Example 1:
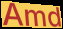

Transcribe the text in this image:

Amd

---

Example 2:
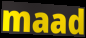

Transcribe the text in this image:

maad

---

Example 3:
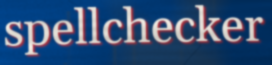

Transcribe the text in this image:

spellchecker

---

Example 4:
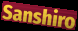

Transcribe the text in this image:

Sanshiro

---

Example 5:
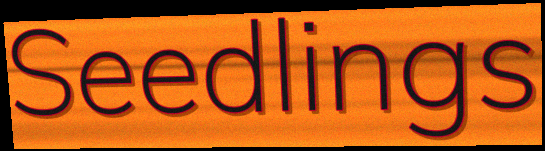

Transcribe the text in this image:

Seedlings